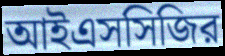
আইএসসিজির